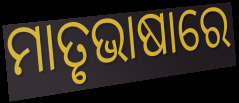
ମାତୃଭାଷାରେ